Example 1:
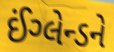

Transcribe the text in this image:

ઈંગ્લેન્ડને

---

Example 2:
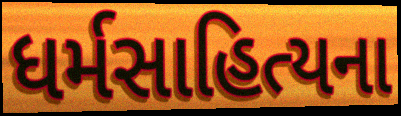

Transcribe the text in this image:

ધર્મસાહિત્યના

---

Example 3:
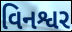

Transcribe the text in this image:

વિનશ્વર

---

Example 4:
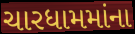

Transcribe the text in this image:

ચારધામમાંના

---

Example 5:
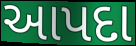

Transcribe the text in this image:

આપદા